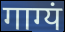
गाग्यं